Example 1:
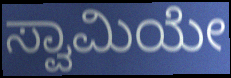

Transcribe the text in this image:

ಸ್ವಾಮಿಯೇ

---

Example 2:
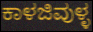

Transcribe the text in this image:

ಕಾಳಜಿವುಳ್ಳ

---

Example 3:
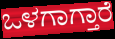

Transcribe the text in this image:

ಒಳಗಾಗ್ತಾರೆ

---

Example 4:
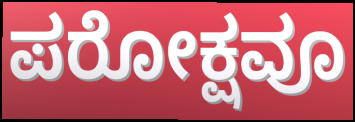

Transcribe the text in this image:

ಪರೋಕ್ಷವೂ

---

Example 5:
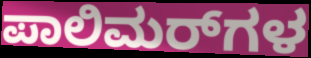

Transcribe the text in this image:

ಪಾಲಿಮರ್‌ಗಳ